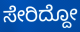
ಸೇರಿದ್ದೋ